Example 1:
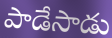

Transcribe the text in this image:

పాడేసాడు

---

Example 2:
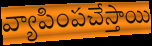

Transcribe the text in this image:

వ్యాపింపచేస్తాయి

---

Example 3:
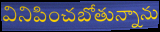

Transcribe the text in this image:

వినిపించబోతున్నాను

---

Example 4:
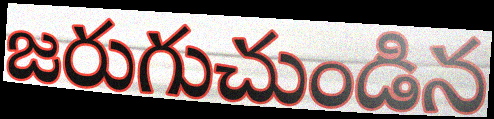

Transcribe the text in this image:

జరుగుచుండిన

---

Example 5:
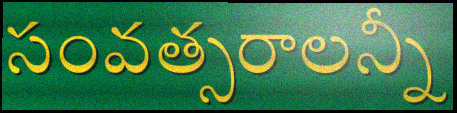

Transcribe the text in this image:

సంవత్సరాలన్నీ